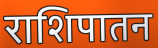
राशिपातन